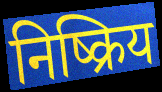
निष्क्रिय